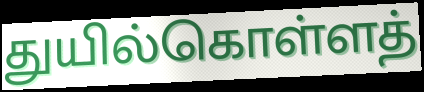
துயில்கொள்ளத்